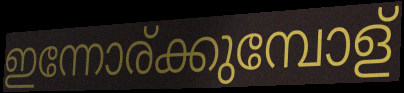
ഇന്നോര്ക്കുമ്പോള്